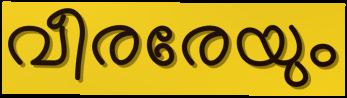
വീരരേയും